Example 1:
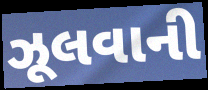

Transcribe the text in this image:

ઝૂલવાની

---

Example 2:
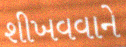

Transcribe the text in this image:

શીખવવાને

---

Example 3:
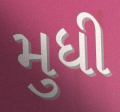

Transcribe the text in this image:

મુધી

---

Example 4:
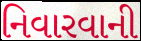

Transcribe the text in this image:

નિવારવાની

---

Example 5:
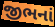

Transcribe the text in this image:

જીભનાં